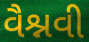
વૈશ્નવી